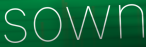
sown